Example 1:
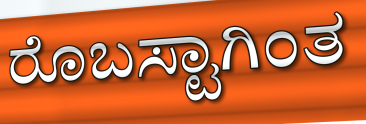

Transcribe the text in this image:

ರೊಬಸ್ಟಾಗಿಂತ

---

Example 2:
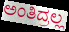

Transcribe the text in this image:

ಅಂತಿದ್ರಲ್ಲ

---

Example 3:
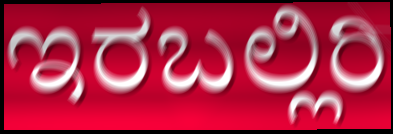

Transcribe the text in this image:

ಇರಬಲ್ಲಿರಿ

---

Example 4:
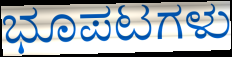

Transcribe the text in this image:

ಭೂಪಟಗಳು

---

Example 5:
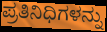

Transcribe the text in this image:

ಪ್ರತಿನಿಧಿಗಳನ್ನು